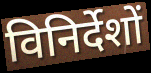
विनिर्देशों